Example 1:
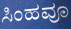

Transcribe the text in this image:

ಸಿಂಹವೂ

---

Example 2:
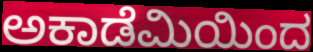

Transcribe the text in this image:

ಅಕಾಡೆಮಿಯಿಂದ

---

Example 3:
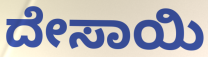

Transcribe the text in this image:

ದೇಸಾಯಿ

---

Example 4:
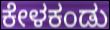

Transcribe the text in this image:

ಕೇಳಕಂಡು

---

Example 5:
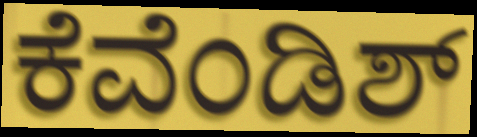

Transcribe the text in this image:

ಕೆವೆಂಡಿಶ್